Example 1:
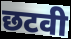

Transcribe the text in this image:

छटवी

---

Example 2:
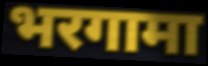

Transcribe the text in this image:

भरगामा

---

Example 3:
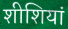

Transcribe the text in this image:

शीशियां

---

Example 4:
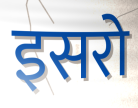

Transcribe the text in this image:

इसरो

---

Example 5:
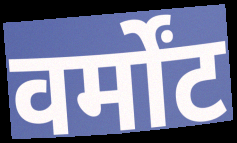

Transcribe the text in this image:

वर्मोंट